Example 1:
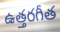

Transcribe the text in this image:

ఉత్తరగీత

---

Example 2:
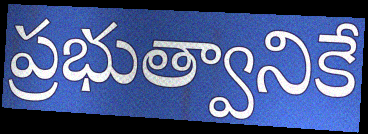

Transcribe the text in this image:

ప్రభుత్వానికే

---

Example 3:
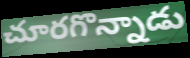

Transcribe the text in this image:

చూరగొన్నాడు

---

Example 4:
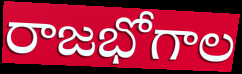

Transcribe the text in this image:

రాజభోగాల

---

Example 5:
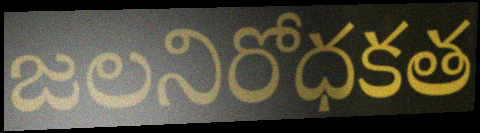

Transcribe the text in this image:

జలనిరోధకత